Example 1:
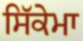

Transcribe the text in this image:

ਸਿੱਕੇਮਾ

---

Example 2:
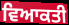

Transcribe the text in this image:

ਵਿਆਕਤੀ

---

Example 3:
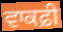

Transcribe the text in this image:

ਵਾਕਫ਼ੀ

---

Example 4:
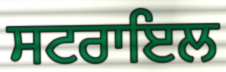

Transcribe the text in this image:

ਸਟਰਾਇਲ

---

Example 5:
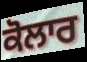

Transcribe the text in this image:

ਕੋਲਾਰ